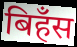
बिहँस